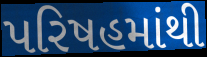
પરિષહમાંથી